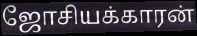
ஜோசியக்காரன்